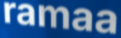
ramaa